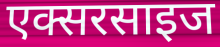
एक्सरसाइज